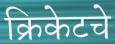
क्रिकेटचे